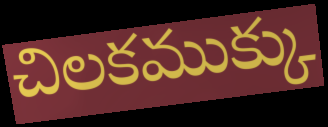
చిలకముక్కు